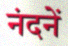
नंदनें